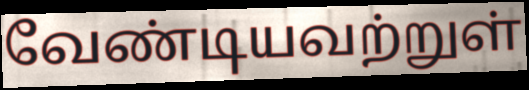
வேண்டியவற்றுள்